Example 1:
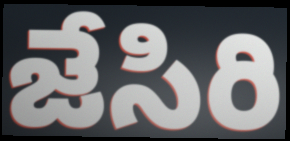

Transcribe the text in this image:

జేసిరి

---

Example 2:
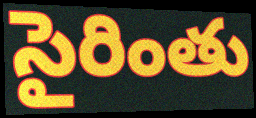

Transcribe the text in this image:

సైరింతు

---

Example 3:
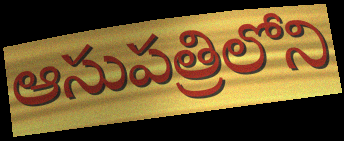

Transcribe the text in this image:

ఆసుపత్రిలోని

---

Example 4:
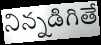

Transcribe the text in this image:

నిన్నడిగితే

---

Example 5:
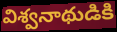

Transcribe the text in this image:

విశ్వనాథుడికి